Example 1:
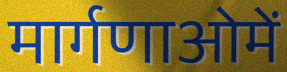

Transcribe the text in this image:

मार्गणाओमें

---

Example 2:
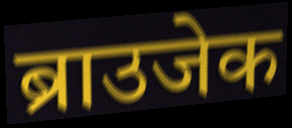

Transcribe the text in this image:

ब्राउजेक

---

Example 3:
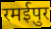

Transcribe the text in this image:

रमईपुर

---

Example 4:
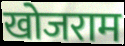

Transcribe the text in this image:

खोजराम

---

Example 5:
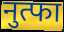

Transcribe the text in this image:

नुत्फा